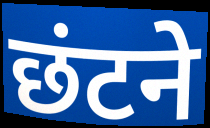
छंटने